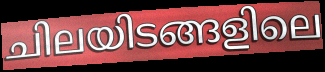
ചിലയിടങ്ങളിലെ